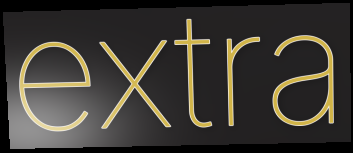
extra